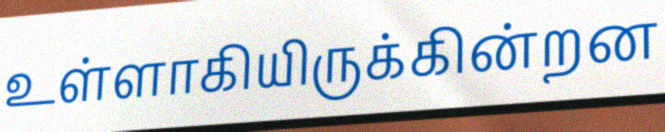
உள்ளாகியிருக்கின்றன